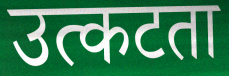
उत्कटता